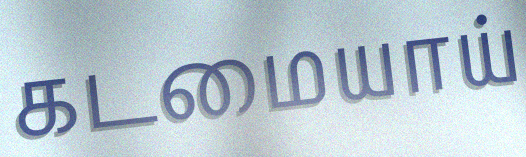
கடமையாய்